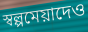
স্বল্পমেয়াদেও